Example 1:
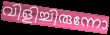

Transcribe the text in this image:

വിളിച്ചിരുന്നോ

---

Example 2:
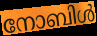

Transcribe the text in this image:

നോബിൾ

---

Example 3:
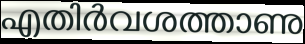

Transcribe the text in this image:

എതിർവശത്താണു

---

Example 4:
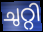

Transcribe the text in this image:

ചുറ്റി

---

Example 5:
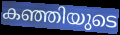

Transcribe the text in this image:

കഞ്ഞിയുടെ